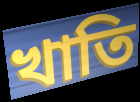
খাতি